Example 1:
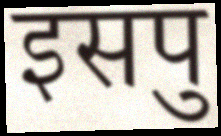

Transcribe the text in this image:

इसपु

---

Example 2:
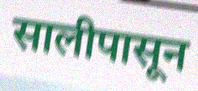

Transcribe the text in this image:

सालीपासून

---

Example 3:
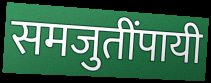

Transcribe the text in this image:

समजुतींपायी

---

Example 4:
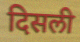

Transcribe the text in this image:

दिसली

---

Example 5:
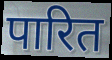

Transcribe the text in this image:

पारित